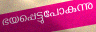
ഭയപ്പെട്ടുപോകുന്നു